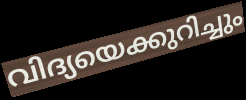
വിദ്യയെക്കുറിച്ചും